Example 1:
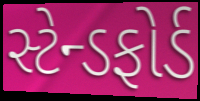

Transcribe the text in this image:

સ્ટેન્ડફોર્ડ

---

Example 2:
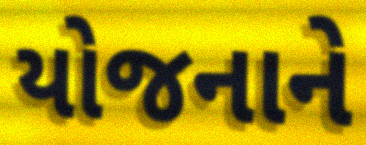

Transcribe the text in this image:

યોજનાને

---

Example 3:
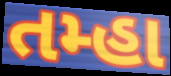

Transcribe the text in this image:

તમ્હા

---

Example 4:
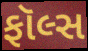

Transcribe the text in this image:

ફૉલ્સ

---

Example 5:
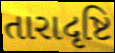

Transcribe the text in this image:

તારાદૃષ્ટિ